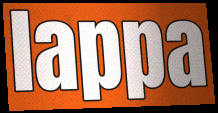
lappa